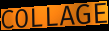
COLLAGE